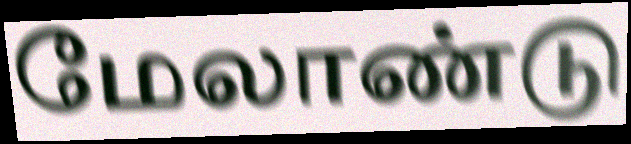
மேலாண்டு